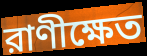
রাণীক্ষেত